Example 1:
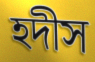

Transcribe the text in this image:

হদীস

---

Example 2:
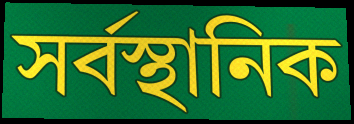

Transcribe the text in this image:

সর্বস্থানিক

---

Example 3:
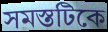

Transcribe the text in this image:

সমস্তটিকে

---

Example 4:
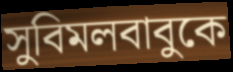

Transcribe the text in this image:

সুবিমলবাবুকে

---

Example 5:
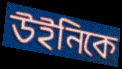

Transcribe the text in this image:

উইনিকে